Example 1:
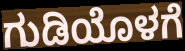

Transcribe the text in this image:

ಗುಡಿಯೊಳಗೆ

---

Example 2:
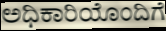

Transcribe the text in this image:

ಅಧಿಕಾರಿಯೊಂದಿಗೆ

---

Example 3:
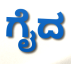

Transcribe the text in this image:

ಗೈದ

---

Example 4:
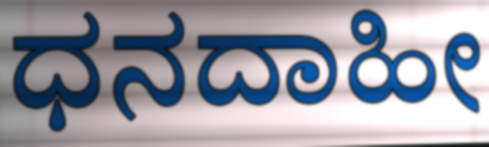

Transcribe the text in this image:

ಧನದಾಹೀ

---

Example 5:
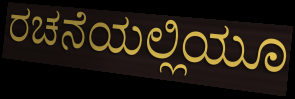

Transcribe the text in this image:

ರಚನೆಯಲ್ಲಿಯೂ